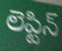
లెప్టిన్